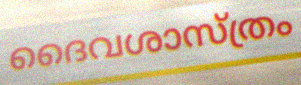
ദൈവശാസ്ത്രം